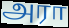
அரா